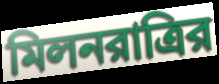
মিলনরাত্রির